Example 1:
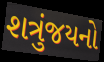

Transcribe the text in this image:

શત્રુંજયનો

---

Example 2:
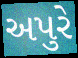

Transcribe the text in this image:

અપુરે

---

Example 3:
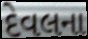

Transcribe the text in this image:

દેવલના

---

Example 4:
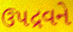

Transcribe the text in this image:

ઉપદ્રવને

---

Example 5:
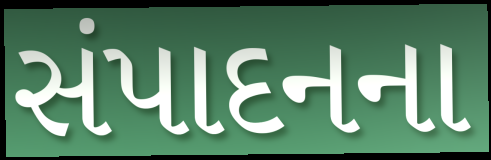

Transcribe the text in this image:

સંપાદનના